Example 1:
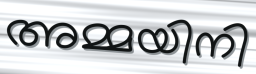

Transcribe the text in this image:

അമ്മയിനി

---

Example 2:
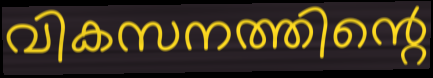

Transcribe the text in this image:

വികസനത്തിന്റെ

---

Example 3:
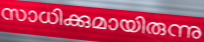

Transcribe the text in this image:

സാധിക്കുമായിരുന്നു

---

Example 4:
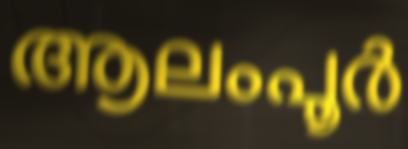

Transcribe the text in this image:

ആലംപൂർ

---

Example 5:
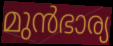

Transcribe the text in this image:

മുൻഭാര്യ